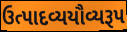
ઉત્પાદવ્યયૌવ્યરૂપ